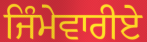
ਜਿੰਮੇਵਾਰੀਏ